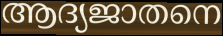
ആദ്യജാതനെ